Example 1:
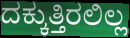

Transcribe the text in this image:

ದಕ್ಕುತ್ತಿರಲಿಲ್ಲ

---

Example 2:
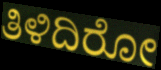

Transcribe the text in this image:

ತಿಳಿದಿರೋ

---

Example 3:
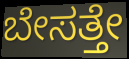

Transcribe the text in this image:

ಬೇಸತ್ತೇ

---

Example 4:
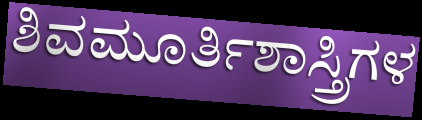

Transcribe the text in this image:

ಶಿವಮೂರ್ತಿಶಾಸ್ತ್ರಿಗಳ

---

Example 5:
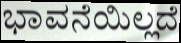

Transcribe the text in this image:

ಭಾವನೆಯಿಲ್ಲದೆ